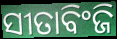
ସୀତାବିଂଜି